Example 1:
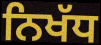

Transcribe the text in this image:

ਨਿਖੱਧ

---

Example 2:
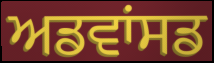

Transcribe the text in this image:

ਅਡਵਾਂਸਡ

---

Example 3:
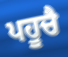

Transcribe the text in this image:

ਪਹੂਚੈ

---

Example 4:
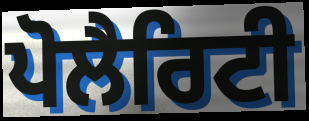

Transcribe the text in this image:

ਪੋਲੈਰਿਟੀ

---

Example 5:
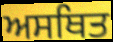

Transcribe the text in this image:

ਅਸਥਿਤ